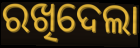
ରଖିଦେଲା